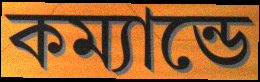
কম্যান্ডে